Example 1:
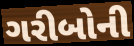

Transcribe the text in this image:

ગરીબોની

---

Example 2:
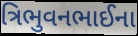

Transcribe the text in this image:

ત્રિભુવનભાઈના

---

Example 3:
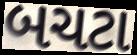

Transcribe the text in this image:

બચટા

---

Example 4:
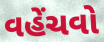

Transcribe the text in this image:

વહેંચવો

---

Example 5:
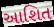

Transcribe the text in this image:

આશિત